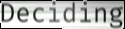
Deciding